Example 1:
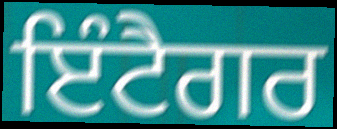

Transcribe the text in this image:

ਇੰਟੈਗਰ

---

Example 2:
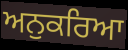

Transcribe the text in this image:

ਅਨੁਕਰਿਆ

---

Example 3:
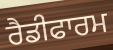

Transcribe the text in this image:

ਰੈਡੀਫਾਰਮ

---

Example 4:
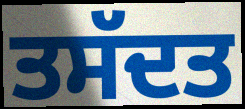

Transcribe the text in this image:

ਤਸੱਦਤ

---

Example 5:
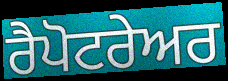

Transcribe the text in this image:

ਰੈਪੋਟਰੇਅਰ